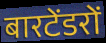
बारटेंडरों